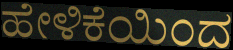
ಹೇಳಿಕೆಯಿಂದ